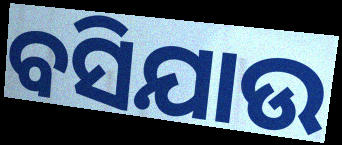
ବସିଯାଉ